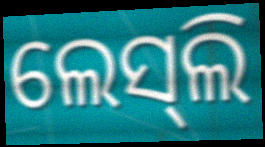
ଲେସ୍‍ଲି